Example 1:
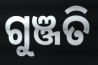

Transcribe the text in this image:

ଗୁଞ୍ଜତି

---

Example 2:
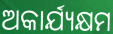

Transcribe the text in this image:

ଅକାର୍ଯ୍ୟକ୍ଷମ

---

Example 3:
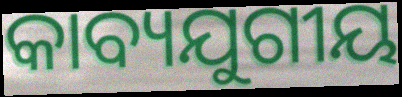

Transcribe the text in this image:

କାବ୍ୟଯୁଗୀୟ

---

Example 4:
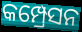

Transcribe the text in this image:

କମ୍ପ୍ରେସନ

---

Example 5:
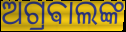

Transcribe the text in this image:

ଅଗ୍ରଵାଲଙ୍କ